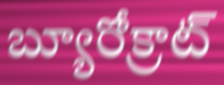
బ్యూరోక్రాట్